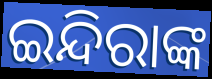
ଇନ୍ଦିରାଙ୍କ